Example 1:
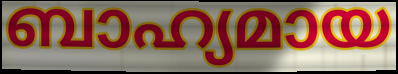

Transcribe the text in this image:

ബാഹ്യമായ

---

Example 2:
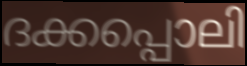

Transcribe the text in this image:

ദക്കപ്പൊലി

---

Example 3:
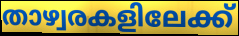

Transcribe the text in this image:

താഴ്വരകളിലേക്ക്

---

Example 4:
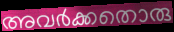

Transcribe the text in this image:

അവർക്കതൊരു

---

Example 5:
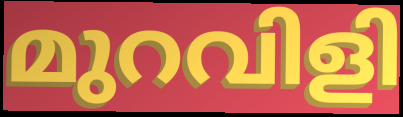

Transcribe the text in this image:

മുറവിളി